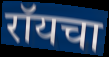
रॉयचा